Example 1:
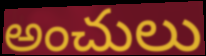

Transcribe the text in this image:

అంచులు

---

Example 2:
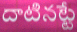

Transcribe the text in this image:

దాటినట్టే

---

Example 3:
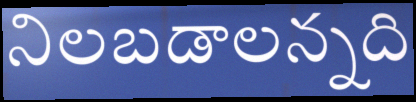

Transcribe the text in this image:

నిలబడాలన్నది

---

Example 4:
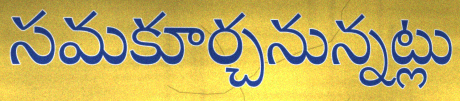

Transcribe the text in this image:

సమకూర్చనున్నట్లు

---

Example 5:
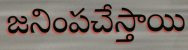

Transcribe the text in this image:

జనింపచేస్తాయి